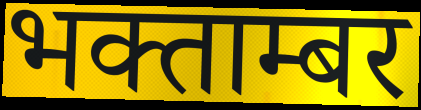
भक्ताम्बर